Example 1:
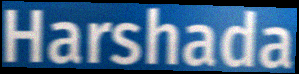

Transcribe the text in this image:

Harshada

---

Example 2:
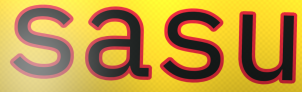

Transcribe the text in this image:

sasu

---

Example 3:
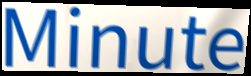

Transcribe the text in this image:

Minute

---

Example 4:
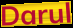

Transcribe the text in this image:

Darul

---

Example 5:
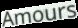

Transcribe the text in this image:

Amours